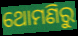
ଥୋମଣିରୁ